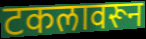
टकलावरून